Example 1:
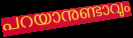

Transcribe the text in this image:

പറയാനുണ്ടാവും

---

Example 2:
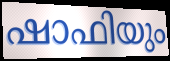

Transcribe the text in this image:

ഷാഫിയും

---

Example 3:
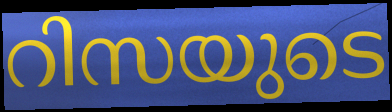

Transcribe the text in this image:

റിസയുടെ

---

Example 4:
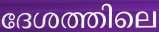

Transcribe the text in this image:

ദേശത്തിലെ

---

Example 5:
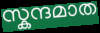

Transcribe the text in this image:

സ്കന്ദമാത